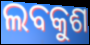
ଲବକୁଶ